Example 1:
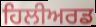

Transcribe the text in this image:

ਹਿਲੀਅਰਡ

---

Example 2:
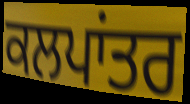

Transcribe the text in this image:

ਕਲਪਾਂਤਰ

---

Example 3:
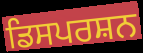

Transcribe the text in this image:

ਡਿਸਪਰਸ਼ਨ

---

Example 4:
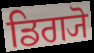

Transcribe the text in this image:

ਡਿਗ੍ਯੋ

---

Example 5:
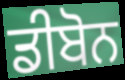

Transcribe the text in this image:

ਡੀਬੋਨ